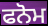
ਫਨੋਮ